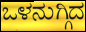
ಒಳನುಗ್ಗಿದ